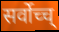
सर्वोच्च्